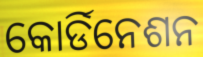
କୋର୍ଡିନେଶନ